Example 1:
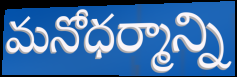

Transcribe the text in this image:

మనోధర్మాన్ని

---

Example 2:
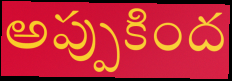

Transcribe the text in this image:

అప్పుకింద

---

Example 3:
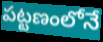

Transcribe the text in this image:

పట్టణంలోనే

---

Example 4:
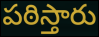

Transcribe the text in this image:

పఠిస్తారు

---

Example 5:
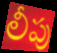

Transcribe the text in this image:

లీపు